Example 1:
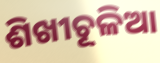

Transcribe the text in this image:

ଶିଖୀଚୂଳିଆ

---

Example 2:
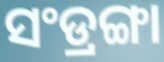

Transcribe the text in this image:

ସଂଡ୍ରଙ୍ଗା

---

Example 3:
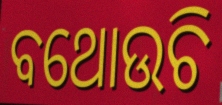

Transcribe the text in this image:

ବଥୋଉଚି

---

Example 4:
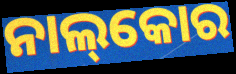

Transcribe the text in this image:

ନାଲ୍‌କୋର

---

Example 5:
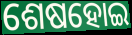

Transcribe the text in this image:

ଶେଷହୋଇ